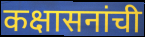
कक्षासनांची